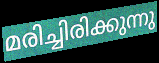
മരിച്ചിരിക്കുന്നു